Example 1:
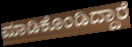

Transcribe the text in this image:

ಮಾಡಿಕೊಂಡಿದ್ದಾರೆ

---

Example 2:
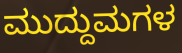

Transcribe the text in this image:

ಮುದ್ದುಮಗಳ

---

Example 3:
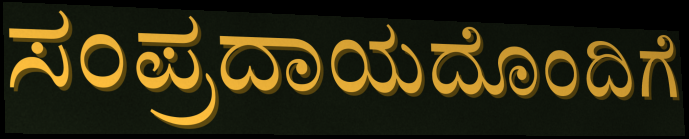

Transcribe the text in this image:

ಸಂಪ್ರದಾಯದೊಂದಿಗೆ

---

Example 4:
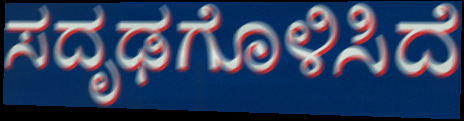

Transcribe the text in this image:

ಸದೃಢಗೊಳಿಸಿದೆ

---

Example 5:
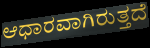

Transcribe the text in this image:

ಆಧಾರವಾಗಿರುತ್ತದೆ